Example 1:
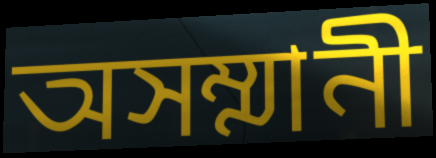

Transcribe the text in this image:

অসম্মানী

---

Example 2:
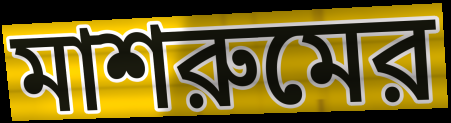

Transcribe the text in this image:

মাশরুমের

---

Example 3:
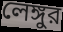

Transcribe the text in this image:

লেঙ্গুর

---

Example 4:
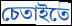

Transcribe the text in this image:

চেতাইতে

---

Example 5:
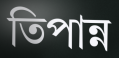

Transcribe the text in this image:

তিপান্ন